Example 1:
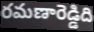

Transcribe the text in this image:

రమణారెడ్డిది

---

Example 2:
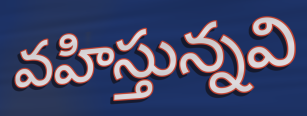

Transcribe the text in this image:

వహిస్తున్నవి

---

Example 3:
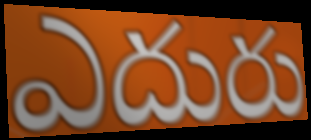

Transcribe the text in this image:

ఎదురు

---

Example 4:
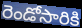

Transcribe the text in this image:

రెండోసారికి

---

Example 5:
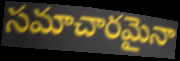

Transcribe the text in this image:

సమాచారమైనా